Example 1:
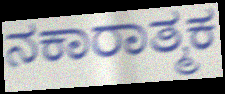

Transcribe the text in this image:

ನಕಾರಾತ್ಮಕ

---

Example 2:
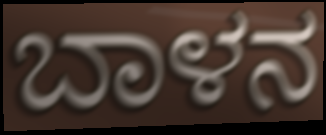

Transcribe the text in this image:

ಬಾಳನ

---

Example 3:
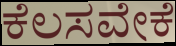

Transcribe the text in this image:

ಕೆಲಸವೇಕೆ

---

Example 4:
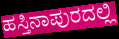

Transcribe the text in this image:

ಹಸ್ತಿನಾಪುರದಲ್ಲಿ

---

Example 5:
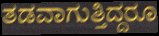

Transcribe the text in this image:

ತಡವಾಗುತ್ತಿದ್ದರೂ